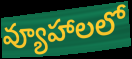
వ్యూహాలలో